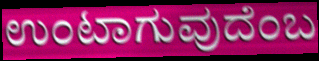
ಉಂಟಾಗುವುದೆಂಬ